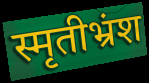
स्मृतीभ्रंश